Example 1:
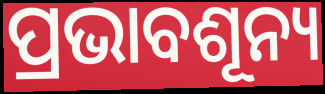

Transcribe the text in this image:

ପ୍ରଭାବଶୂନ୍ୟ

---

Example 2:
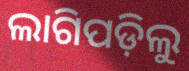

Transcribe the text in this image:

ଲାଗିପଡ଼ିଲୁ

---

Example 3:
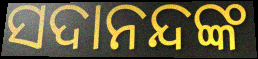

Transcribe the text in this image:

ସଦାନନ୍ଦଙ୍କ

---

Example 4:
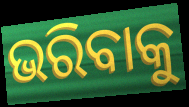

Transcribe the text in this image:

ଭରିବାକୁ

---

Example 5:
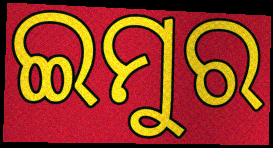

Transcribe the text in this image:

ଇମୁର